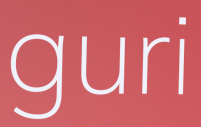
guri